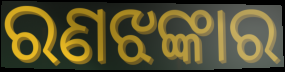
ରଣଝଙ୍କାର